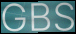
GBS